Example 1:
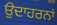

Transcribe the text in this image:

ਉਦਾਹਰਨਾਂ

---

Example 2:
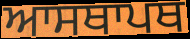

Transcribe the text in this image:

ਆਸਥਾਪਥ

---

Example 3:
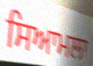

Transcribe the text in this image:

ਸਿਆਮਲਾ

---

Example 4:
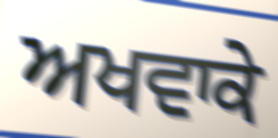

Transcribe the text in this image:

ਅਖਵਾਕੇ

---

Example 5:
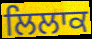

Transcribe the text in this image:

ਲਿਲਾਕ